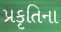
પ્રકૃતિના